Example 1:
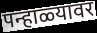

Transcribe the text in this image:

पन्हाळ्यावर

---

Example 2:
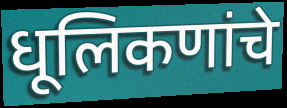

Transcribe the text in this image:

धूलिकणांचे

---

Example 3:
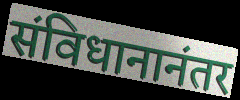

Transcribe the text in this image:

संविधानानंतर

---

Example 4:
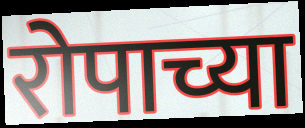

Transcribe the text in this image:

रोपाच्या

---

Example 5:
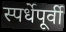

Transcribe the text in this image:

स्पर्धेपूर्वी